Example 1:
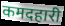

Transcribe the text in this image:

कमदहारी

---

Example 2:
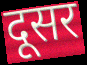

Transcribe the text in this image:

दूसर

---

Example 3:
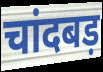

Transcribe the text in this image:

चांदबड़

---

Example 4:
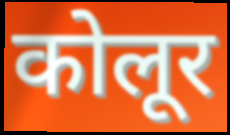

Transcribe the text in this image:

कोलूर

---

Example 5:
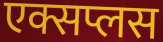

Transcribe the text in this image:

एक्सप्लस